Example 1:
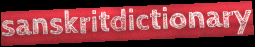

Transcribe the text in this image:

sanskritdictionary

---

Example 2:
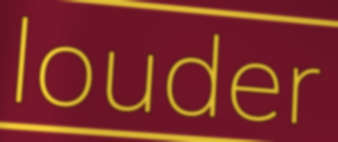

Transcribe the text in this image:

louder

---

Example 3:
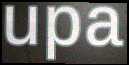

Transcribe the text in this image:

upa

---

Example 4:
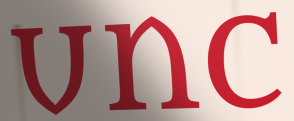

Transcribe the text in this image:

unc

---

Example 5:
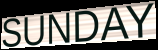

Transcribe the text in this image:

SUNDAY